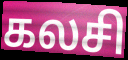
கலசி